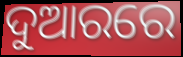
ଦୁଆରରେ